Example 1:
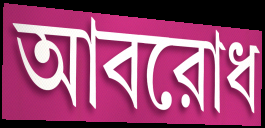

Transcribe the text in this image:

আবরোধ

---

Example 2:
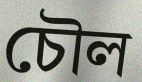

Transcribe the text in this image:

চৌল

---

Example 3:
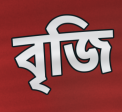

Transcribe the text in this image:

বৃজি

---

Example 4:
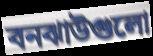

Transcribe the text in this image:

বনঝাউগুলো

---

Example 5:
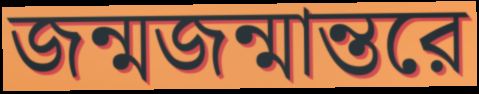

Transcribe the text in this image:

জন্মজন্মান্তরে